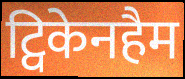
ट्विकेनहैम